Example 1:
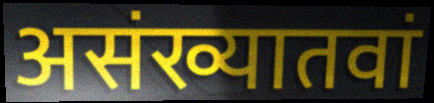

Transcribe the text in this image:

असंख्यातवां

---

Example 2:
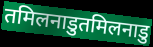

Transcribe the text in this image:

तमिलनाडुतमिलनाडु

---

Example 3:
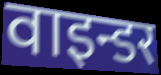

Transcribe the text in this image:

वाइन्डर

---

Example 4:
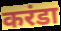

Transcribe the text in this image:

करंडा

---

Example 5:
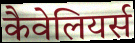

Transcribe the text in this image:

कैवेलियर्स